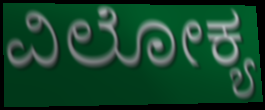
ವಿಲೋಕ್ಯ